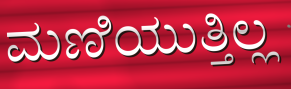
ಮಣಿಯುತ್ತಿಲ್ಲ